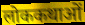
लोककथाओं